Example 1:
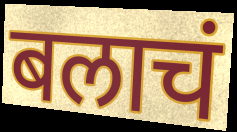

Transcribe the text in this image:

बलाचं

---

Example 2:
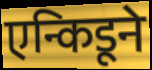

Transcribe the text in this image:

एन्किडूने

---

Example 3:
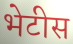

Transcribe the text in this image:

भेटीस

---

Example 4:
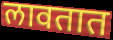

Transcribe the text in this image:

लावतात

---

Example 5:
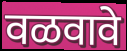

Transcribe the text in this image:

वळवावे